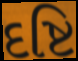
દષ્ટિ